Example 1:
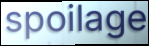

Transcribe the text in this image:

spoilage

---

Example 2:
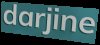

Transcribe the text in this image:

darjine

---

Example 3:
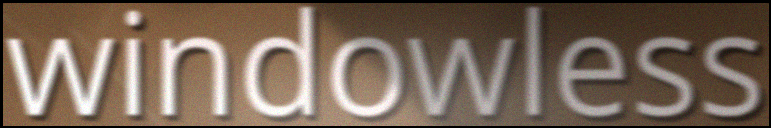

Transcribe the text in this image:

windowless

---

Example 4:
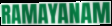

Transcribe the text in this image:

RAMAYANAM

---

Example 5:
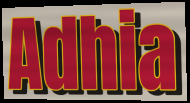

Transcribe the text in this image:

Adhia